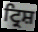
ਟ੍ਰਿਸ਼